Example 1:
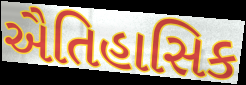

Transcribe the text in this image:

ઐતિહાસિક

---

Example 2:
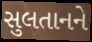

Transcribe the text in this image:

સુલતાનને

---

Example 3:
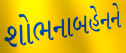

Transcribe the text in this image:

શોભનાબહેનને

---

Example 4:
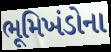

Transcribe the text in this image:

ભૂમિખંડોના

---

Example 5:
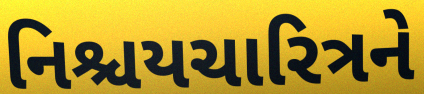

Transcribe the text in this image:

નિશ્ચયચારિત્રને